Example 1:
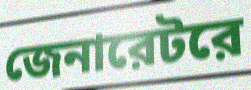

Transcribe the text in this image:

জেনারেটরে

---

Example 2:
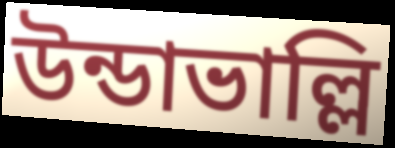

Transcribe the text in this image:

উন্ডাভাল্লি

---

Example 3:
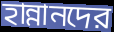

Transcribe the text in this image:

হান্নানদের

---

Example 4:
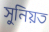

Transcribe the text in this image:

সুনিয়ত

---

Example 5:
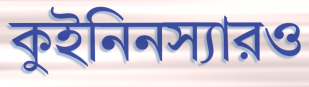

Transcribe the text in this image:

কুইনিনস্যারও